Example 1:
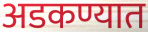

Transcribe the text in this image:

अडकण्यात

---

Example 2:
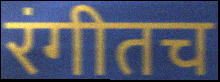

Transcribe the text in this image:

रंगीतच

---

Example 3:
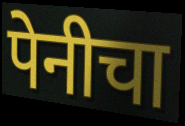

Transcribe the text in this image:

पेनीचा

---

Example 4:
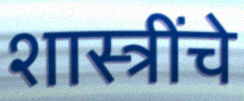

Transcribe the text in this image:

शास्त्रींचे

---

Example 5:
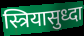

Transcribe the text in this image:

स्त्रियासुध्दा